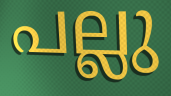
പല്ലു